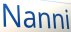
Nanni